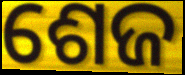
ଶେଜ